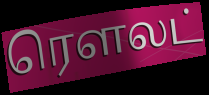
ரௌலட்